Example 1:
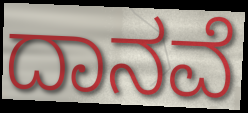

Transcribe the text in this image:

ದಾನವೆ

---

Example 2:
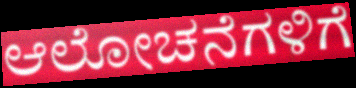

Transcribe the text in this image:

ಆಲೋಚನೆಗಳಿಗೆ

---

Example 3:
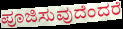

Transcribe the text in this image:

ಪೂಜಿಸುವುದೆಂದರೆ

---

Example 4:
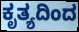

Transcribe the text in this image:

ಕೃತ್ಯದಿಂದ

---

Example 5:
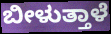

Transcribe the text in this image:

ಬೀಳುತ್ತಾಳೆ